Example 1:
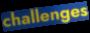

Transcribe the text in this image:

challenges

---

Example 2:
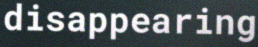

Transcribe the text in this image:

disappearing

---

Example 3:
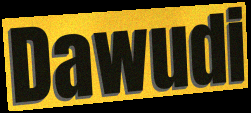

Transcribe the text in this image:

Dawudi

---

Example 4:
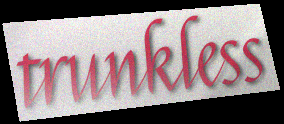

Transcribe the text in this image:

trunkless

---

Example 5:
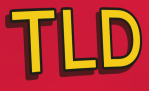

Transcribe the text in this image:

TLD